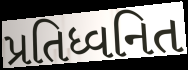
પ્રતિધ્વનિત